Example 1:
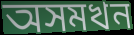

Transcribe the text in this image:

অসমখন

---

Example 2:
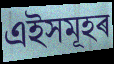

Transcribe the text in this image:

এইসমূহৰ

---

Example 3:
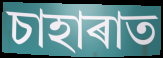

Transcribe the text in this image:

চাহাৰাত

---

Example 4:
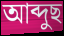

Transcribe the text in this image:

আব্দুছ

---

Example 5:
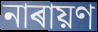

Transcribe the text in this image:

নাৰায়ণ